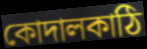
কোদালকাঠি